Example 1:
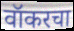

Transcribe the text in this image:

वॉकरचा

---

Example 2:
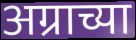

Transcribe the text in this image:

अग्राच्या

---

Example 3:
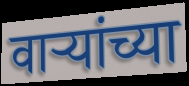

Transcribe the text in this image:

वाऱ्यांच्या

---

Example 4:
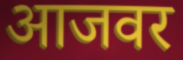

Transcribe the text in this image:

आजवर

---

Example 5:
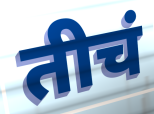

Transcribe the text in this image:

तीचं